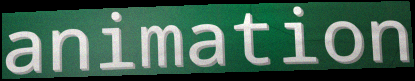
animation